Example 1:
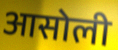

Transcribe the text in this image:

आसोली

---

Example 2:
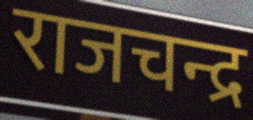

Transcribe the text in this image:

राजचन्द्र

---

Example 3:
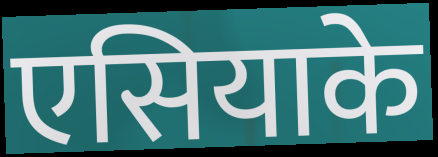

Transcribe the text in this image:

एसियाके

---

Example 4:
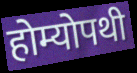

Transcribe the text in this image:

होम्योपथी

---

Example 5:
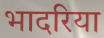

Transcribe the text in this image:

भादरिया